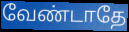
வேண்டாதே